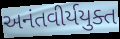
અનંતવીર્યયુક્ત